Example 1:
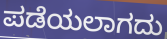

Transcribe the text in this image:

ಪಡೆಯಲಾಗದು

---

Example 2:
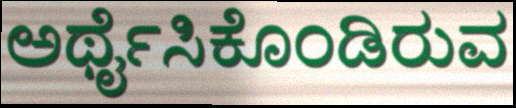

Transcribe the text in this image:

ಅರ್ಥೈಸಿಕೊಂಡಿರುವ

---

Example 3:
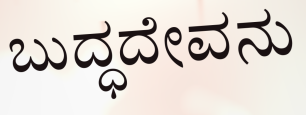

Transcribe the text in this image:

ಬುದ್ಧದೇವನು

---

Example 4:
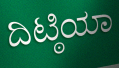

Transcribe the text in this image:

ದಿಟ್ಠಿಯಾ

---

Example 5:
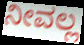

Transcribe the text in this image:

ನೀವಲ್ಲ